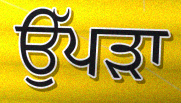
ਉੱਪੜਾ